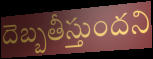
దెబ్బతీస్తుందని